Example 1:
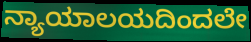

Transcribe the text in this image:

ನ್ಯಾಯಾಲಯದಿಂದಲೇ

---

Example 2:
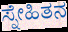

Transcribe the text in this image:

ಸ್ನೇಹಿತನ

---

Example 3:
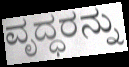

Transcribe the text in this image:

ವೃದ್ಧರನ್ನು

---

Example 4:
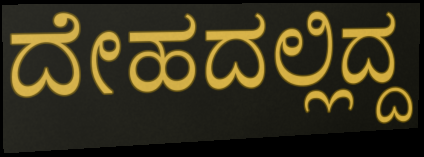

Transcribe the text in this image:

ದೇಹದಲ್ಲಿದ್ದ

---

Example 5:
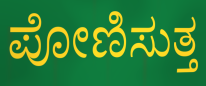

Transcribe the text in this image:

ಪೋಣಿಸುತ್ತ